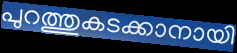
പുറത്തുകടക്കാനായി